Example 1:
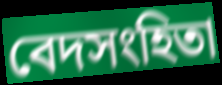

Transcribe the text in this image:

বেদসংহিতা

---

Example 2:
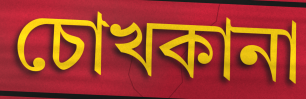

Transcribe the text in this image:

চোখকানা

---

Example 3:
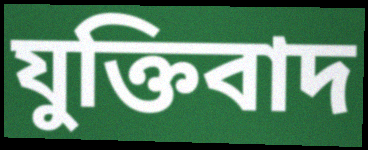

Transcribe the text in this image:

যুক্তিবাদ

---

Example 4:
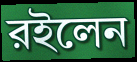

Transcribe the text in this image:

রইলেন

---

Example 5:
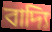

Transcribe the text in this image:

বাদ্যি